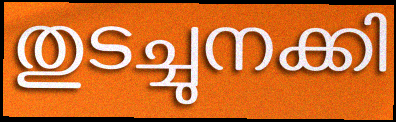
തുടച്ചുനക്കി